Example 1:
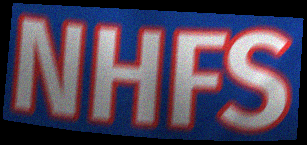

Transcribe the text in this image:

NHFS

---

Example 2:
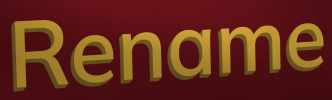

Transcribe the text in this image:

Rename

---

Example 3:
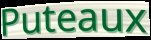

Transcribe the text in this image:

Puteaux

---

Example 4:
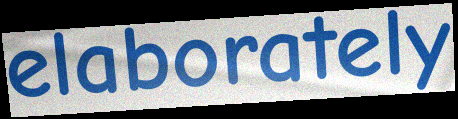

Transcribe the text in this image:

elaborately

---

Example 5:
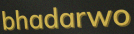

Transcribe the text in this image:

bhadarwo